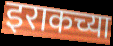
इराकच्या